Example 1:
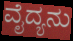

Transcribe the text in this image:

ವೈದ್ಯನು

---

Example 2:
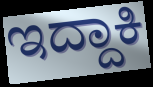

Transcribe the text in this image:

ಇದ್ದಾಕಿ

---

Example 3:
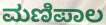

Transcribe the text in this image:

ಮಣಿಪಾಲ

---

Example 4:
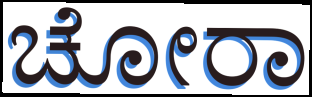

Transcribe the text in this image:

ಚೋರಾ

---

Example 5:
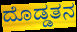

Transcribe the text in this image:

ದೊಡ್ಡತನ